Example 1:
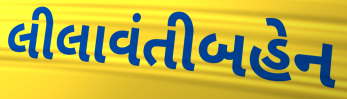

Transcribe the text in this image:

લીલાવંતીબહેન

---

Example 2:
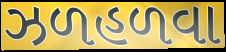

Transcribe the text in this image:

ઝળહળવા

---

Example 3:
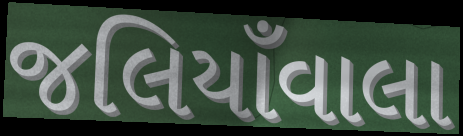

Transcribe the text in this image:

જલિયાઁવાલા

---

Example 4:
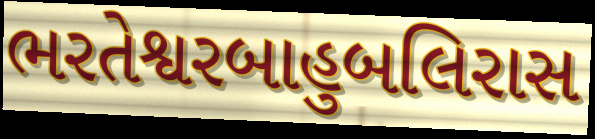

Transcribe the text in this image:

ભરતેશ્વરબાહુબલિરાસ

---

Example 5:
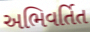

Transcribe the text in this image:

અભિવર્તિત